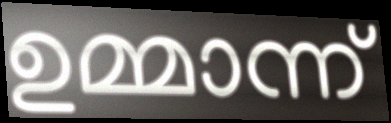
ഉമ്മാന്ന്